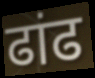
ढांढ